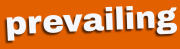
prevailing